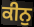
ਕੀਨੁ